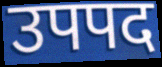
उपपद